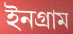
ইনগ্রাম